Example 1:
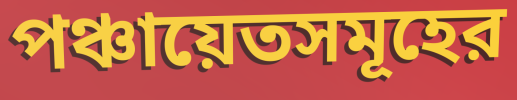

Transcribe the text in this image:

পঞ্চায়েতসমূহের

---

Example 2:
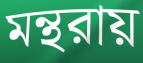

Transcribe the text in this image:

মন্থরায়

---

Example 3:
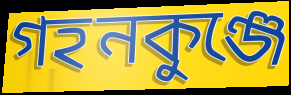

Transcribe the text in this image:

গহনকুঞ্জে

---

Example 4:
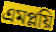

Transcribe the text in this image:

এমপ্লয়ি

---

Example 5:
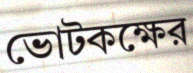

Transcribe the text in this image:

ভোটকক্ষের